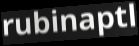
rubinaptl